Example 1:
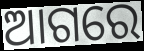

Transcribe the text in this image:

ଆଗରେ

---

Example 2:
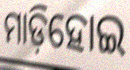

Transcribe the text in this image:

ମାଡ଼ିହୋଇ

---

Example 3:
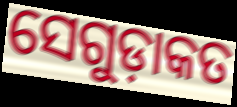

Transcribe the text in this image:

ସେଗୁଡ଼ାକତ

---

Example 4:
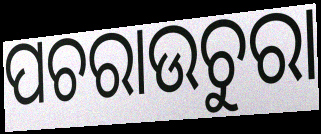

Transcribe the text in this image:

ପଚରାଉଚୁରା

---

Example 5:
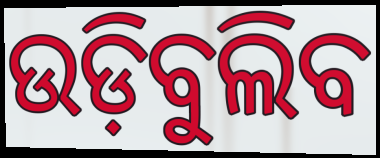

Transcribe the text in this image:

ଉଡ଼ିବୁଲିବ